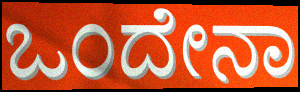
ಒಂದೇನಾ